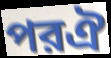
পরঐ